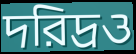
দরিদ্রও